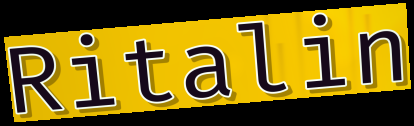
Ritalin